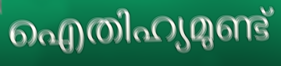
ഐതിഹ്യമുണ്ട്